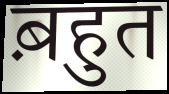
ब़हुत